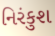
નિરંકુશ